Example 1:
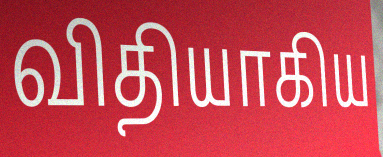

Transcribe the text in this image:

விதியாகிய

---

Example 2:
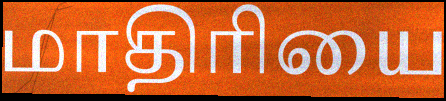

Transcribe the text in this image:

மாதிரியை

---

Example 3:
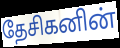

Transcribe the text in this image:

தேசிகனின்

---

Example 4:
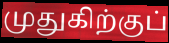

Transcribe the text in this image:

முதுகிற்குப்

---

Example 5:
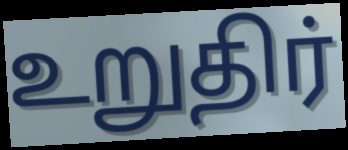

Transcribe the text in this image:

உறுதிர்